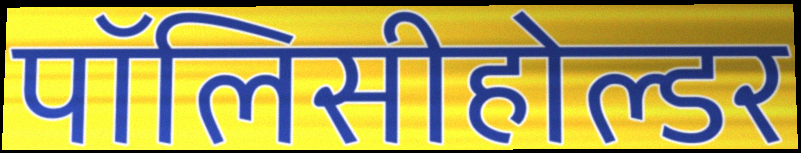
पॉलिसीहोल्डर